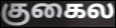
குகைல